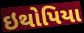
ઇથોપિયા